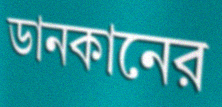
ডানকানের